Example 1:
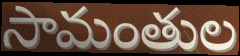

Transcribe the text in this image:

సామంతుల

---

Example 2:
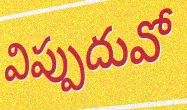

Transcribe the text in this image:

విప్పుదువో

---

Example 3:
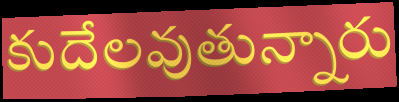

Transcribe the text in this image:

కుదేలవుతున్నారు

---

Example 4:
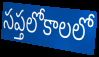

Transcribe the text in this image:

సప్తలోకాలలో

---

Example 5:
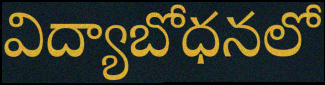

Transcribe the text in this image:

విద్యాబోధనలో